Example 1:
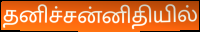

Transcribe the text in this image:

தனிச்சன்னிதியில்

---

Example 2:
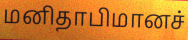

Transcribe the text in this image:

மனிதாபிமானச்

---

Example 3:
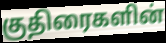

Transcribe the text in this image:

குதிரைகளின்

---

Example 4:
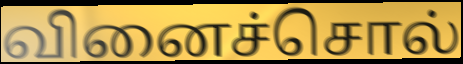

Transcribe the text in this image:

வினைச்சொல்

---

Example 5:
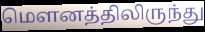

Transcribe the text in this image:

மௌனத்திலிருந்து